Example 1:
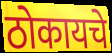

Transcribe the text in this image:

ठोकायचे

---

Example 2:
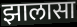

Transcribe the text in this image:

झालासा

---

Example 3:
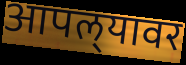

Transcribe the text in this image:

आपल्यावर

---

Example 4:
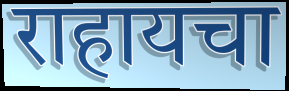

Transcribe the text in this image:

राहायचा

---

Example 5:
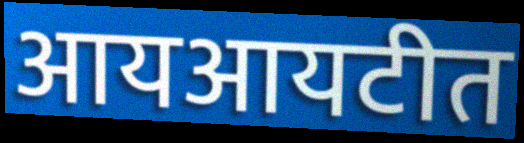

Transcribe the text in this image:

आयआयटीत